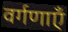
वर्गणाएँ